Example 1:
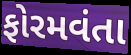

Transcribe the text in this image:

ફોરમવંતા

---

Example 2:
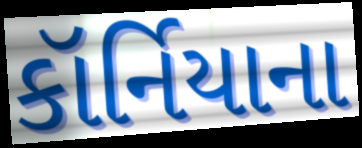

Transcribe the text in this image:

કૉર્નિયાના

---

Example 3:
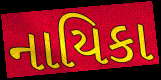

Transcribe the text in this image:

નાયિકા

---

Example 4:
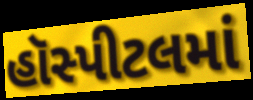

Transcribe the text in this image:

હૉસ્પીટલમાં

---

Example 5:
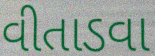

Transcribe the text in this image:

વીતાડવા